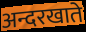
अन्दरखाते